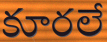
కూరలే